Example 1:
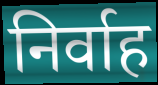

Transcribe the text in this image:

निर्वाह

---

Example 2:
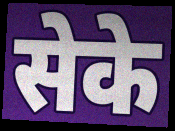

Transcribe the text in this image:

सेके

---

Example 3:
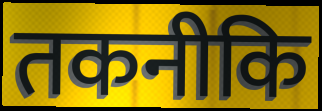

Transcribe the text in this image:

तकनीकि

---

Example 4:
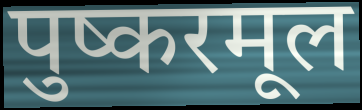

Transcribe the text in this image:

पुष्करमूल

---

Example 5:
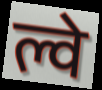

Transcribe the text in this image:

ल्वे